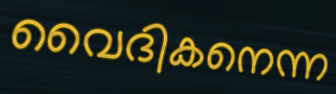
വൈദികനെന്ന